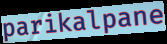
parikalpane